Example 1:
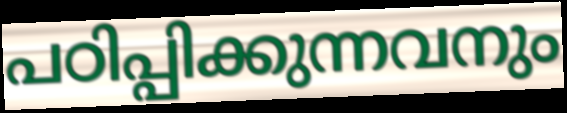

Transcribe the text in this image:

പഠിപ്പിക്കുന്നവനും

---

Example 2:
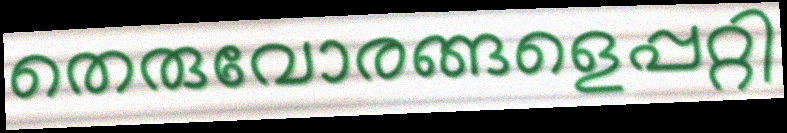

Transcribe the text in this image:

തെരുവോരങ്ങളെപ്പറ്റി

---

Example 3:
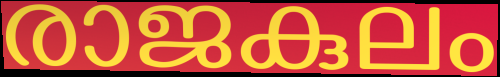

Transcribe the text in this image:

രാജകുലം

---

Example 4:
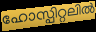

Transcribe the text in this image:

ഹോസ്പിറ്റലിൽ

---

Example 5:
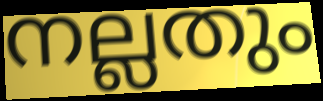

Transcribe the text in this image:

നല്ലതും